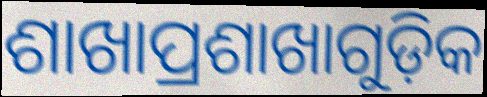
ଶାଖାପ୍ରଶାଖାଗୁଡ଼ିକ